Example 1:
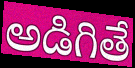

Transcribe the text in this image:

అడిగితే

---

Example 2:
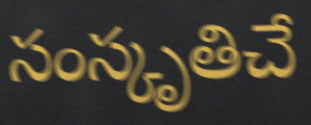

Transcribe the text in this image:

సంస్కృతిచే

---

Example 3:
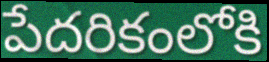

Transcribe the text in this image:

పేదరికంలోకి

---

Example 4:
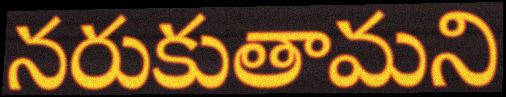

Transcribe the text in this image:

నరుకుతామని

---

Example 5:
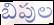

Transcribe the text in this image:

బిపుల